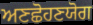
ਅਣਛੋਹਣਯੋਗ